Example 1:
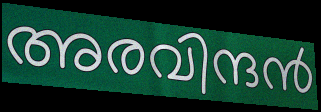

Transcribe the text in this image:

അരവിന്ദൻ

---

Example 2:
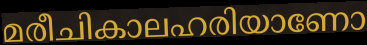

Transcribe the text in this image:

മരീചികാലഹരിയാണോ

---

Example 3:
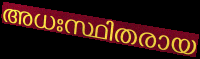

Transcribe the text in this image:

അധഃസ്ഥിതരായ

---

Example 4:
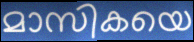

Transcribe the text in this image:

മാസികയെ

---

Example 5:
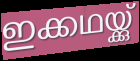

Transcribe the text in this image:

ഇക്കഥയ്ക്കു്